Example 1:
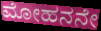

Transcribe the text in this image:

ಮೋಹನನೇ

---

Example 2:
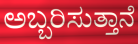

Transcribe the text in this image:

ಅಬ್ಬರಿಸುತ್ತಾನೆ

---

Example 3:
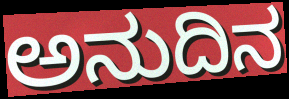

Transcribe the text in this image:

ಅನುದಿನ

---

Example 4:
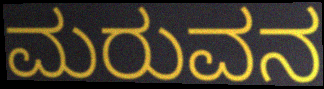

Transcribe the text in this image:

ಮರುವನ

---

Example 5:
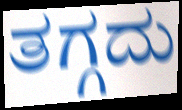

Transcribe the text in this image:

ತಗ್ಗದು